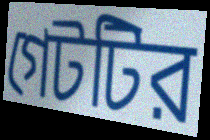
গেটটির